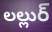
లల్లుర్